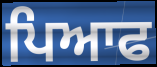
ਪਿਆਫ